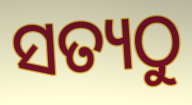
ସତ୍ୟଠୁ